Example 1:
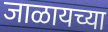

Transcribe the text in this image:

जाळायच्या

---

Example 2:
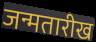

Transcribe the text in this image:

जन्मतारीख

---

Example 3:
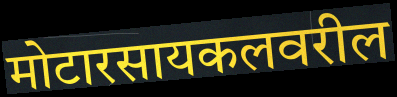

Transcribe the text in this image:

मोटारसायकलवरील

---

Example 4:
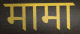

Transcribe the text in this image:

मामा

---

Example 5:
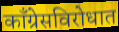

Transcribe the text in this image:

काँग्रेसविरोधात